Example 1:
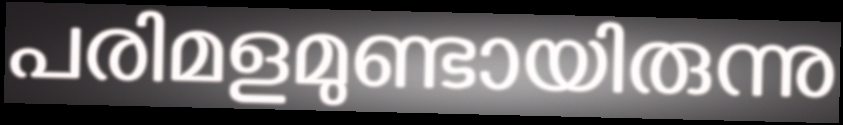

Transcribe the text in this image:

പരിമളമുണ്ടായിരുന്നു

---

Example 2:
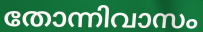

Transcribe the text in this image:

തോന്നിവാസം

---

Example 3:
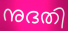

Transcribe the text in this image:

നുദതി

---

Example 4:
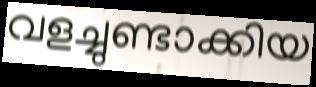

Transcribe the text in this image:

വളച്ചുണ്ടാക്കിയ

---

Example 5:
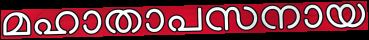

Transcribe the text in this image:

മഹാതാപസനായ